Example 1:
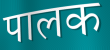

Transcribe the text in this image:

पालक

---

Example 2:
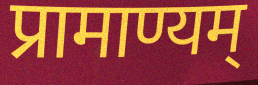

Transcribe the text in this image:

प्रामाण्यम्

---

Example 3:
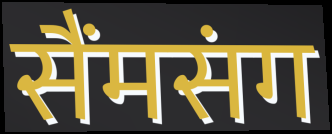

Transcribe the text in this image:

सैंमसंग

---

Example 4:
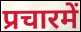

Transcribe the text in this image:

प्रचारमें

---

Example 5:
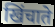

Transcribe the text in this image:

खिंचाते